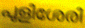
പുളിശേരി